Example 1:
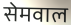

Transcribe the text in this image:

सेमवाल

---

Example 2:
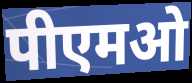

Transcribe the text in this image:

पीएमओ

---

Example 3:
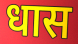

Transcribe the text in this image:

धास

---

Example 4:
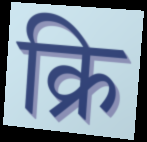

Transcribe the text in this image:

क्रि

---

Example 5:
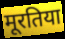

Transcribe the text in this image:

मूरतिया